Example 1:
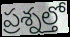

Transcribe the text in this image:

ప్రశ్నల్తో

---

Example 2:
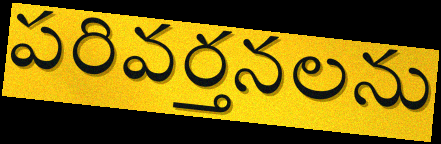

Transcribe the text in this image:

పరివర్తనలను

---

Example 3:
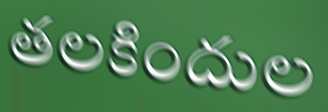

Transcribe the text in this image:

తలకిందుల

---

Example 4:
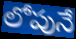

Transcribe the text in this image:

లోపునే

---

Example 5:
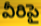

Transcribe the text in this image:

వీరిపై